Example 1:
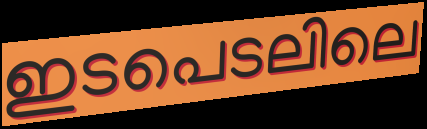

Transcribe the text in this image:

ഇടപെടലിലെ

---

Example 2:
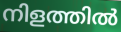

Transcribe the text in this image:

നിളത്തിൽ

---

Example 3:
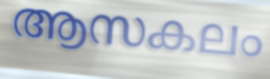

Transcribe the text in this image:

ആസകലം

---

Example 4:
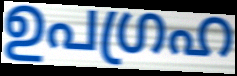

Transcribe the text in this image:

ഉപഗ്രഹ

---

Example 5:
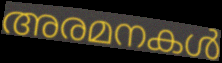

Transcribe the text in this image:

അരമനകൾ